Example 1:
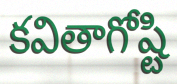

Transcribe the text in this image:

కవితాగోష్టి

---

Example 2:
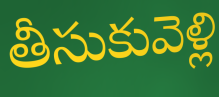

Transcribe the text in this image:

తీసుకువెళ్లి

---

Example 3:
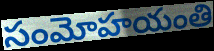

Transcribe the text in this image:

సంమోహయంతి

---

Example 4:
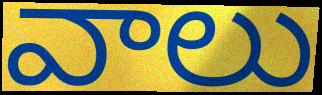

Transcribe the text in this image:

వాలు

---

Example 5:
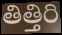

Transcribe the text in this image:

తిత్తిరి